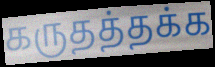
கருதத்தக்க